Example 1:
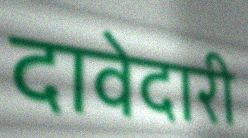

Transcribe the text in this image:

दावेदारी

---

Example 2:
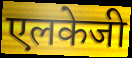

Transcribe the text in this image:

एलकेजी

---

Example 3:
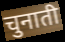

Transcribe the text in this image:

चुनाती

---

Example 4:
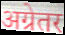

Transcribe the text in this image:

अग्रेतर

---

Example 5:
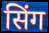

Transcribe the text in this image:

सिंग